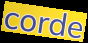
corde